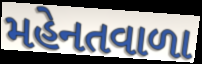
મહેનતવાળા